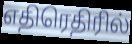
எதிரெதிரில்